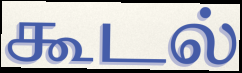
கூடல்